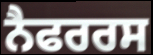
ਨੈਫਰਰਸ